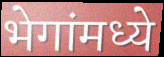
भेगांमध्ये